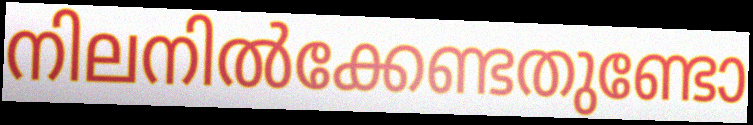
നിലനിൽക്കേണ്ടതുണ്ടോ